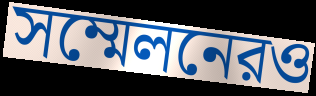
সম্মেলনেরও